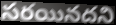
సరయినదని